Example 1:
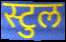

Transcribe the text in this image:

स्टुल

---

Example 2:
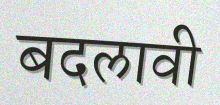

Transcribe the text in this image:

बदलावी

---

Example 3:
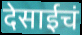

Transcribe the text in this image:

देसाईचं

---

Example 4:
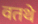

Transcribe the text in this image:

वतथे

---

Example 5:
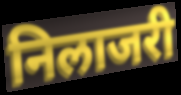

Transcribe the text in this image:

निलाजरी